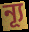
ন্যূ